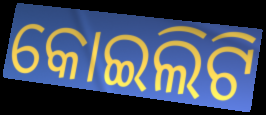
କୋଇଲିଟି